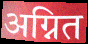
अग्नित